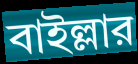
বাইল্লার